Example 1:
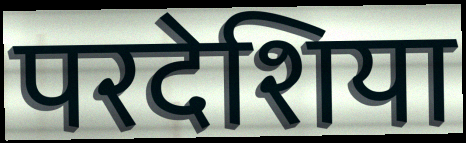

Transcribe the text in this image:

परदेशिया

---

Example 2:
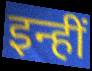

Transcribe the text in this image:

इन्‍हीं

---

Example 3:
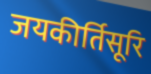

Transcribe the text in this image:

जयकीर्तिसूरि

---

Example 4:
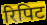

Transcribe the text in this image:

रिपिट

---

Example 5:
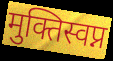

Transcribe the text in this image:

मुक्तिस्वप्न